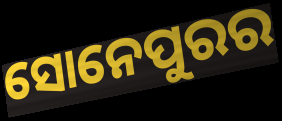
ସୋନେପୁରର